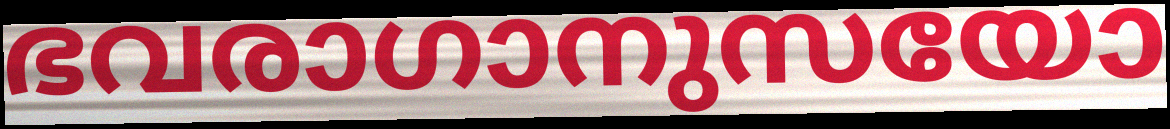
ഭവരാഗാനുസയോ